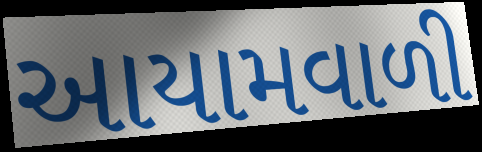
આયામવાળી